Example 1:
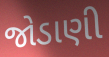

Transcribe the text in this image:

જોડાણી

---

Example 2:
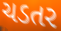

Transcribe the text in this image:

ચડતર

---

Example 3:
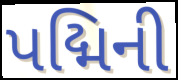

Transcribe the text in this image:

પદ્મિની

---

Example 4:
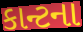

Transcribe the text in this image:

કાન્ટના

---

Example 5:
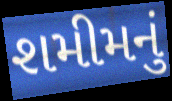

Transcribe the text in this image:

શમીમનું